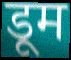
डूम